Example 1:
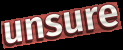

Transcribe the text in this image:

unsure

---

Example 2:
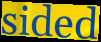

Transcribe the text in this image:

sided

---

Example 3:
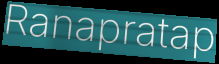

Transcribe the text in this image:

Ranapratap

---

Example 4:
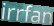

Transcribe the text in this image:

irrfan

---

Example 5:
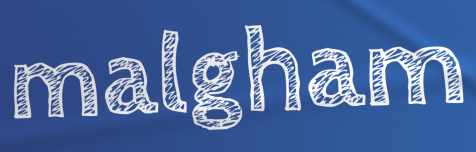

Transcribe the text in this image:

malgham